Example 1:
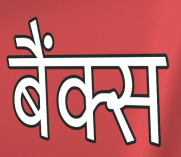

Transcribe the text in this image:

बैंक्स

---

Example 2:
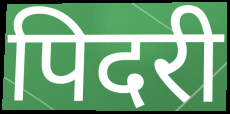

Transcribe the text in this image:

पिदरी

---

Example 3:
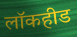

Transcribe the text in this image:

लॉकहीड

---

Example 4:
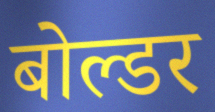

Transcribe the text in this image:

बोल्डर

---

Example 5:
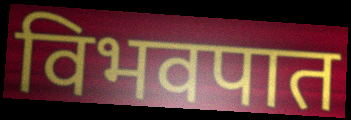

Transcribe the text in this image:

विभवपात